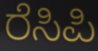
ರೆಸಿಪಿ